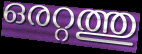
ഒരറ്റത്തു